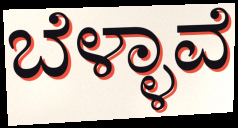
ಬೆಳ್ಳಾವೆ